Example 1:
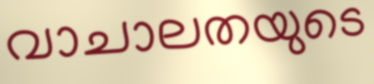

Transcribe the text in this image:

വാചാലതയുടെ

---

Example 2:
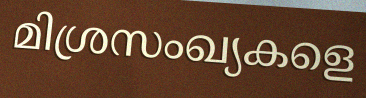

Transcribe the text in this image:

മിശ്രസംഖ്യകളെ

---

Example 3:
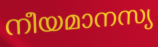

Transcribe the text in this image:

നീയമാനസ്യ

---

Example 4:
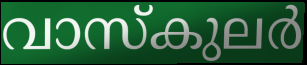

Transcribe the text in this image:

വാസ്കുലർ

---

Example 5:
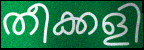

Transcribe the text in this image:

തീക്കളി